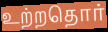
உற்றதொர்